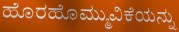
ಹೊರಹೊಮ್ಮುವಿಕೆಯನ್ನು